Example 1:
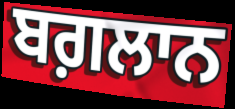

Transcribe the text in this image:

ਬਗ਼ਲਾਨ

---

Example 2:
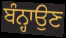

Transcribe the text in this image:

ਬੰਨ੍ਹਾਉਣ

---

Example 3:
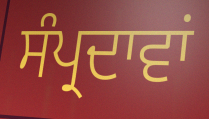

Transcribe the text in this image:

ਸੰਪ੍ਰਦਾਵਾਂ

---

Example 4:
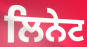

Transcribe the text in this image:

ਲਿਨੇਟ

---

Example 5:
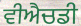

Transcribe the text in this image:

ਵੀਐਚਡੀ